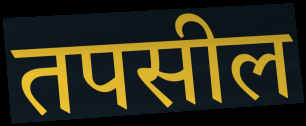
तपसील